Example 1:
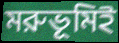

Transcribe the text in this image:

মরুভূমিই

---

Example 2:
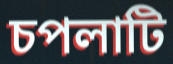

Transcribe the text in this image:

চপলাটি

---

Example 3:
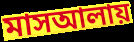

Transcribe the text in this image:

মাসআলায়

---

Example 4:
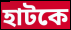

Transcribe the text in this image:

হাটকে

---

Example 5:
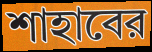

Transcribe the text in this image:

শাহাবের